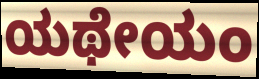
ಯಥೇಯಂ